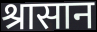
श्रासान